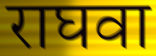
राघवा